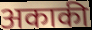
अकाकी